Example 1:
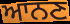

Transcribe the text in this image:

ਆਨਣ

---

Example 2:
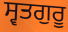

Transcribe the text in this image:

ਸ੍ਵਤਗੁਰੂ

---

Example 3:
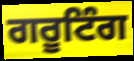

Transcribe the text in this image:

ਗਰੂਟਿੰਗ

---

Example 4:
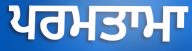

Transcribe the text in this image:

ਪਰਮਤਾਮਾ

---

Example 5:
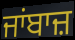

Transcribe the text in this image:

ਜਾਂਬਾਜ਼